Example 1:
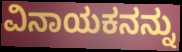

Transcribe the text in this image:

ವಿನಾಯಕನನ್ನು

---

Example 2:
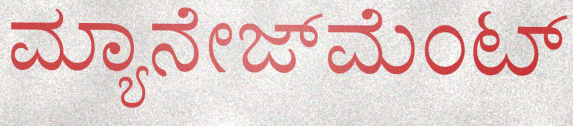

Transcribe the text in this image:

ಮ್ಯಾನೇಜ್‍ಮೆಂಟ್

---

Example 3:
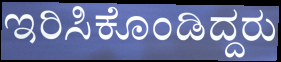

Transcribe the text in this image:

ಇರಿಸಿಕೊಂಡಿದ್ದರು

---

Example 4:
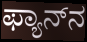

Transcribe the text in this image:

ಫ್ಯಾನ್‌ನ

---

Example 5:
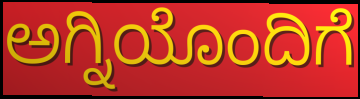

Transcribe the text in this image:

ಅಗ್ನಿಯೊಂದಿಗೆ